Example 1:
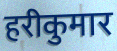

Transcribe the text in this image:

हरीकुमार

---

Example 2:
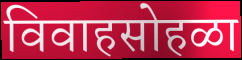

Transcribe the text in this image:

विवाहसोहळा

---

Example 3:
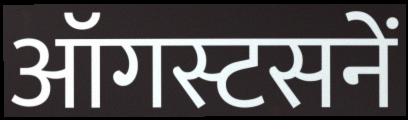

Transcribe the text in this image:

ऑगस्टसनें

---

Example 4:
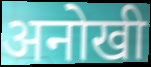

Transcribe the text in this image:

अनोखी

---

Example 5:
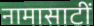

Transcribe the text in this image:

नामासाटीं